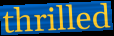
thrilled